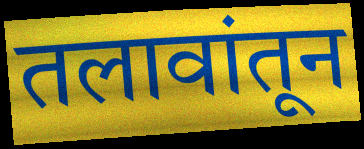
तलावांतून